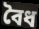
বৈধ